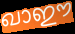
ഖാഈ